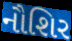
નૌશિર